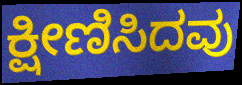
ಕ್ಷೀಣಿಸಿದವು